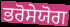
ਭਰੋਸੇਯੋਗ